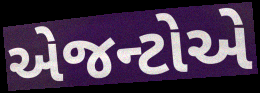
એજન્ટોએ